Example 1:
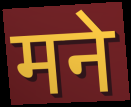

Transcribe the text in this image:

मने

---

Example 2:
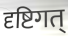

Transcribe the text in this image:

दृष्टिगत्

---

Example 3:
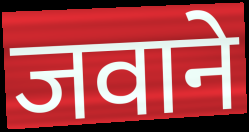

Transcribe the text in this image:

जवाने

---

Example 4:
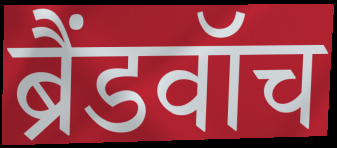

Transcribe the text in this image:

ब्रैंडवॉच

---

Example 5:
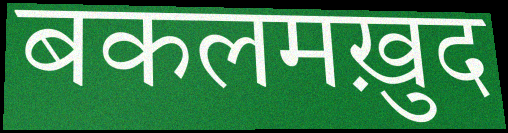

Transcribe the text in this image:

बकलमख़ुद